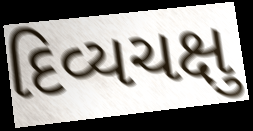
દિવ્યચક્ષુ